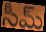
సీమ్